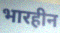
भारहीन